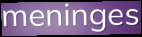
meninges